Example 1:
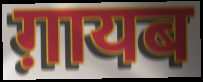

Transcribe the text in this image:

ग़ायब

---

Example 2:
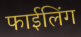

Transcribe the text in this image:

फाईलिंग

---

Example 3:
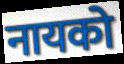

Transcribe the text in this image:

नायको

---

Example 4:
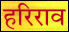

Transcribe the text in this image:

हरिराव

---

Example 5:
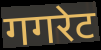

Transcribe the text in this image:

गगरेट